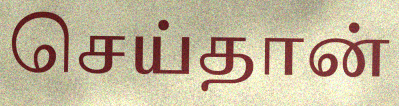
செய்தான்